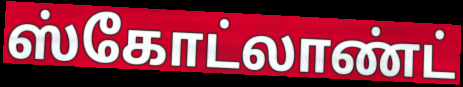
ஸ்கோட்லாண்ட்